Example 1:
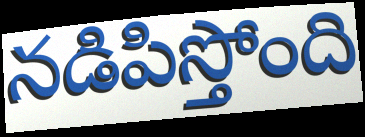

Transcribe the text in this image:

నడిపిస్తోంది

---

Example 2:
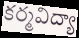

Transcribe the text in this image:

కర్మవిద్యా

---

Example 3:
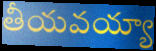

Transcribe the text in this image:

తీయవయ్యా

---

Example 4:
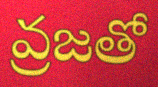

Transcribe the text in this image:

వ్రజతో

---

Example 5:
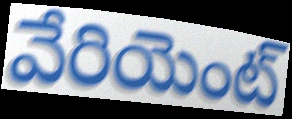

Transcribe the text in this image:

వేరియెంట్